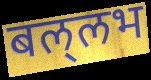
बल्लभ